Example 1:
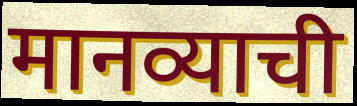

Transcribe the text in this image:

मानव्याची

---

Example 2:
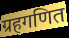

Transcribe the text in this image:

ग्रहगणित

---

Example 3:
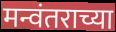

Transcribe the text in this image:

मन्वंतराच्या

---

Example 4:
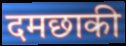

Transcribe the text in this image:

दमछाकी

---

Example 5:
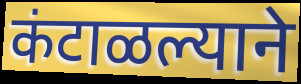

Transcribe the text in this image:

कंटाळल्याने